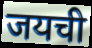
जयची